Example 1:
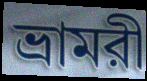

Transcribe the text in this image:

ভ্রামরী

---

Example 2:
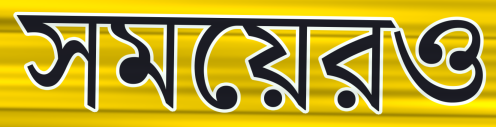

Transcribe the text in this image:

সময়েরও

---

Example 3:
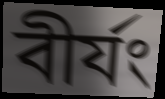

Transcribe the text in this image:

বীর্যং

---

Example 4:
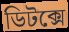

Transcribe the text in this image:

ডিটক্সে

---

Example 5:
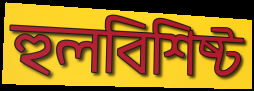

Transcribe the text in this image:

হুলবিশিষ্ট